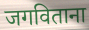
जगविताना